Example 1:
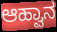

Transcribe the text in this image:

ಆಹ್ವಾನ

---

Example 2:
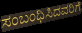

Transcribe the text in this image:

ಸಂಬಂಧಿಸಿದವರಿಗೆ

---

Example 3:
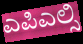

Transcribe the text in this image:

ಎಪಿಎಲ್ಸಿ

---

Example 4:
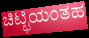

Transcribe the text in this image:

ಚಿಟ್ಟೆಯಂತಹ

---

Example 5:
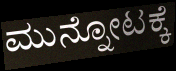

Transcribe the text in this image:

ಮುನ್ನೋಟಕ್ಕೆ